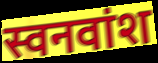
स्वनवांश